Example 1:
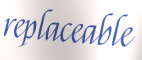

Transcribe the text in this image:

replaceable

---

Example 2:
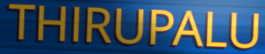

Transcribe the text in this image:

THIRUPALU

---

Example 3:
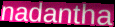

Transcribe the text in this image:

nadantha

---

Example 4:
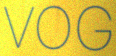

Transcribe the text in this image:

VOG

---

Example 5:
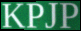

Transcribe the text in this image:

KPJP